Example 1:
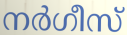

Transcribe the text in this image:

നർഗീസ്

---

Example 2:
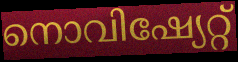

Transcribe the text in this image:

നൊവിഷ്യേറ്റ്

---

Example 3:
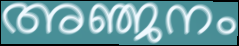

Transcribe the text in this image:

അഞ്ജനം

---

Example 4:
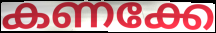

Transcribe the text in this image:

കണക്കേ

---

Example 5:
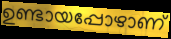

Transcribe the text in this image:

ഉണ്ടായപ്പോഴാണ്